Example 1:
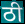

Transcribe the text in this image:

ठी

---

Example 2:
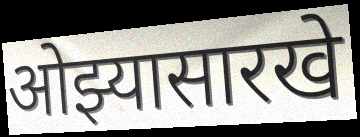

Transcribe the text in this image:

ओझ्यासारखे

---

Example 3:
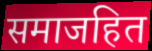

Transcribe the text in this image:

समाजहित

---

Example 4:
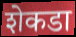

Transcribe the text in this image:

शेकडा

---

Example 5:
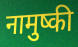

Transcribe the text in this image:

नामुष्की